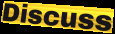
Discuss